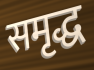
समृद्ध